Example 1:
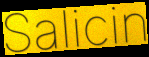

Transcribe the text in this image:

Salicin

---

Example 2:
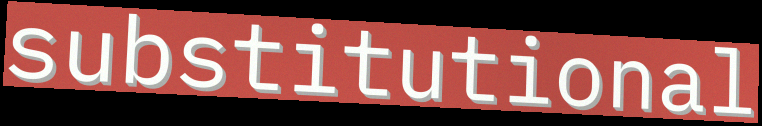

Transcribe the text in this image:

substitutional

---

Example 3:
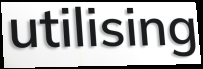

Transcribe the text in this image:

utilising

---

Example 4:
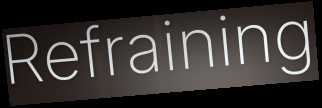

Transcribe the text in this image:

Refraining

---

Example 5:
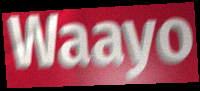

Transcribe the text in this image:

Waayo